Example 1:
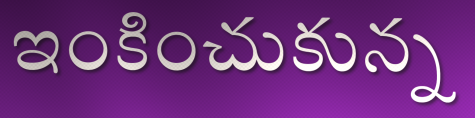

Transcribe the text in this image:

ఇంకించుకున్న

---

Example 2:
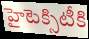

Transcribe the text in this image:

హైటెక్సిటీకి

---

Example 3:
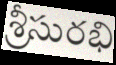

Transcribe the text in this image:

శ్రీసురభి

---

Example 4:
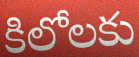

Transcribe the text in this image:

కిలోలకు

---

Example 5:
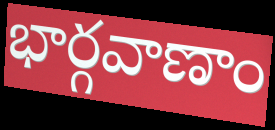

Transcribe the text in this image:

భార్గవాణాం